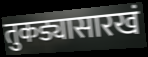
तुकड्यासारखं